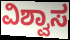
ವಿಶ್ವಾಸ